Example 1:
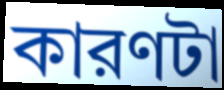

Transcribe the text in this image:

কারণটা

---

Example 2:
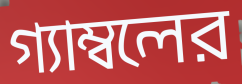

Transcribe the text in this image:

গ্যাম্বলের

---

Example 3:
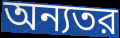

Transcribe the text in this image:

অন্যতর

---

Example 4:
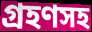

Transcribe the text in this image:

গ্রহণসহ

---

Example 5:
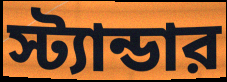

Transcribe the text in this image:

স্ট্যান্ডার